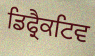
ਡਿਫ੍ਰੈਕਟਿਵ